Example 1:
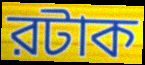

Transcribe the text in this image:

রটাক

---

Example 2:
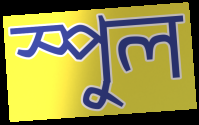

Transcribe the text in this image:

স্পুল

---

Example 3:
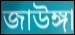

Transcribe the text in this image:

জাউঙ্গা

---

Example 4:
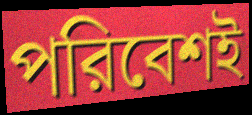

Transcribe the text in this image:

পরিবেশই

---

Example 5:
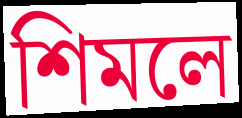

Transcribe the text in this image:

শিমলে